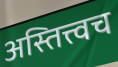
अस्तित्त्वच